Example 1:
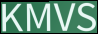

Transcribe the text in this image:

KMVS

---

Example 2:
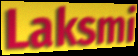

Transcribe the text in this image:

Laksmi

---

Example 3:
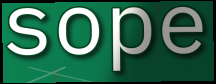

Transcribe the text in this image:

sope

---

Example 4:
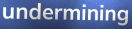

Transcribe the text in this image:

undermining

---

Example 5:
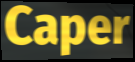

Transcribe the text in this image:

Caper